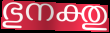
ഭുനക്തു